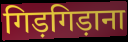
गिड़गिड़ाना